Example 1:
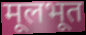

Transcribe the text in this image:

मूलभूत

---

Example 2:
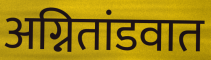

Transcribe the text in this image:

अग्नितांडवात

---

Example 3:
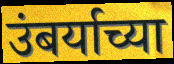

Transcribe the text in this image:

उंबर्याच्या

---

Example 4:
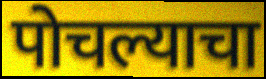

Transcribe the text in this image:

पोचल्याचा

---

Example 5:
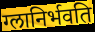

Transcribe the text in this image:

ग्लानिर्भवति